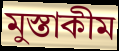
মুস্তাকীম